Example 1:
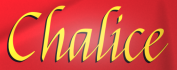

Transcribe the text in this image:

Chalice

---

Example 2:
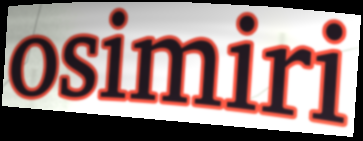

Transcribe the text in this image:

osimiri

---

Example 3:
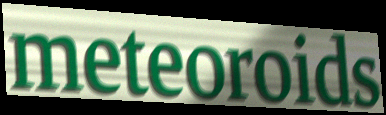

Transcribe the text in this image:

meteoroids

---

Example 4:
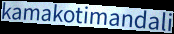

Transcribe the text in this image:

kamakotimandali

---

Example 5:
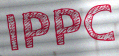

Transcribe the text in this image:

IPPC